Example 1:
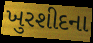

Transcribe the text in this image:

ખુરશીદના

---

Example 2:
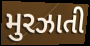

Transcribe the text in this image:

મુરઝાતી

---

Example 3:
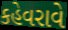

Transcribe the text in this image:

કહેવરાવે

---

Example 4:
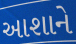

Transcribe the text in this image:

આશાને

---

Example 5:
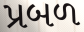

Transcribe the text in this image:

પ્રબળ